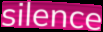
silence